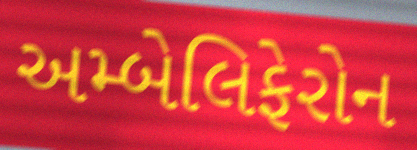
અમ્બેલિફેરોન